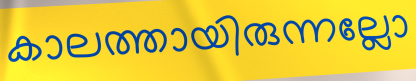
കാലത്തായിരുന്നല്ലോ